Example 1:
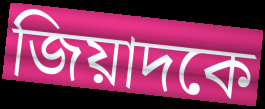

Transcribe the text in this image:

জিয়াদকে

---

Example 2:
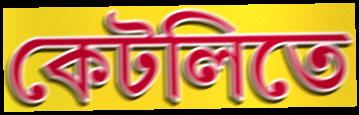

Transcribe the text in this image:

কেটলিতে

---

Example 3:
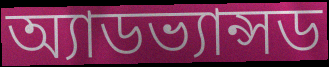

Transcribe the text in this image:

অ্যাডভ্যান্সড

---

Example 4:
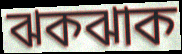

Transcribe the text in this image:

ঝকঝাক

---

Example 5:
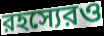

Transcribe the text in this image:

রহস্যেরও